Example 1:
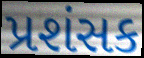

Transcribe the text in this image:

પ્રશંસક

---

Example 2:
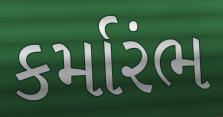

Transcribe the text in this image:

કર્મારંભ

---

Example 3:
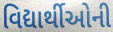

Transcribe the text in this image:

વિદ્યાર્થીઓની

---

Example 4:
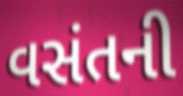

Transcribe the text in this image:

વસંતની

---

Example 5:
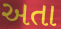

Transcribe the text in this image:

અતા